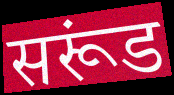
सरूंड